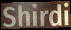
Shirdi